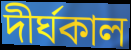
দীর্ঘকাল